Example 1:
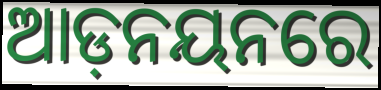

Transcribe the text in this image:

ଆଡ଼ନୟନରେ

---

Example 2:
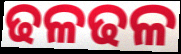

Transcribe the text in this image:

ଢଳଢଳ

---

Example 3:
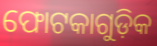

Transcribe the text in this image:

ଫୋଟକାଗୁଡ଼ିକ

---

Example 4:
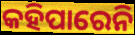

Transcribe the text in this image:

କହିପାରେନି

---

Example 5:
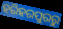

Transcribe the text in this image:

ହରିହରପୁରରୁ